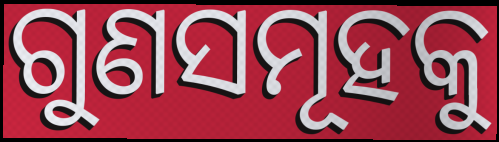
ଗୁଣସମୂହକୁ